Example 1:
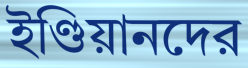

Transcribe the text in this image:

ইণ্ডিয়ানদের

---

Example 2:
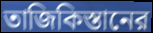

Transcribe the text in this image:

তাজিকিস্তানের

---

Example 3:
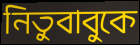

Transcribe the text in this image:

নিতুবাবুকে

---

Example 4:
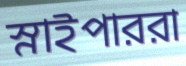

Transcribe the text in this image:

স্নাইপাররা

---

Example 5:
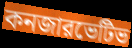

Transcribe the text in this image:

কনজারভেটিভ